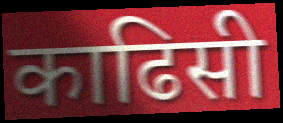
काढिसी